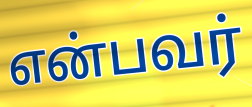
என்பவர்